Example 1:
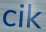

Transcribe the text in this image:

cik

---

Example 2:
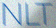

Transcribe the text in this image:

NLT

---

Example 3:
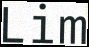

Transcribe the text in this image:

Lim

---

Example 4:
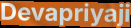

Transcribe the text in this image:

Devapriyaji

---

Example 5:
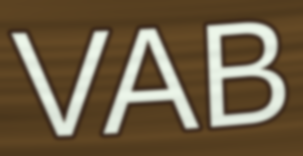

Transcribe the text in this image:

VAB